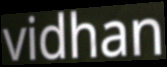
vidhan